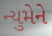
ન્યુમેને